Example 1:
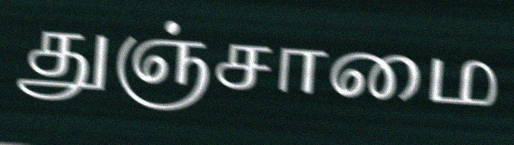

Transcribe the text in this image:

துஞ்சாமை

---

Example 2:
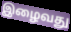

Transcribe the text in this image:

இழைவது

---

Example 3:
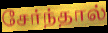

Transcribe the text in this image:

சேர்ந்தால்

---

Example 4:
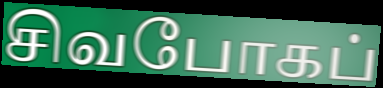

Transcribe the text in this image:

சிவபோகப்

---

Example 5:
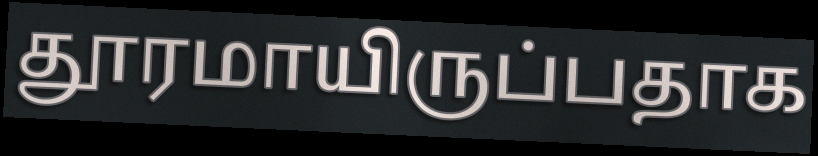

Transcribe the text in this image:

தூரமாயிருப்பதாக